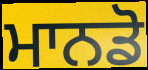
ਮਾਨਡੋ